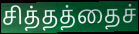
சித்தத்தைச்